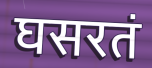
घसरतं